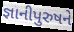
જ્ઞાનીપુરુષને